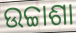
ଉଚ୍ଚାଶା